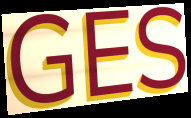
GES